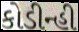
કોડીન્હી